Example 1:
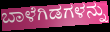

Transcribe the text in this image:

ಬಾಳೆಗಿಡಗಳನ್ನು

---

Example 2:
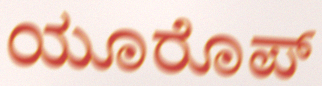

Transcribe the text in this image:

ಯೂರೊಪ್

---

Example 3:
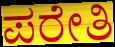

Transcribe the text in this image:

ಪರೇತಿ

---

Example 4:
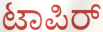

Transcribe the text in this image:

ಟಾಪಿರ್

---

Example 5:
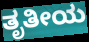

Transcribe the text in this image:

ತೃತೀಯ